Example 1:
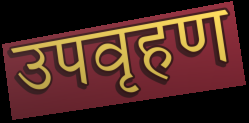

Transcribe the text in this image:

उपवृहण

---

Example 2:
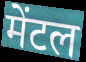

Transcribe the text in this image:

मेंटल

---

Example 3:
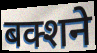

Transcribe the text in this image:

बक्शने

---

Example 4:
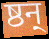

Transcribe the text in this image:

ष्ठन्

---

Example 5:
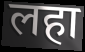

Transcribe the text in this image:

लहा